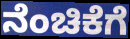
ನೆಂಚಿಕೆಗೆ